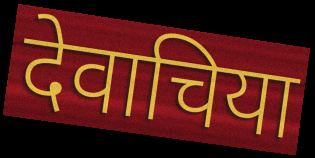
देवाचिया